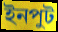
ইনপুট